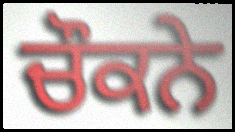
ਚੌਕਨੇ